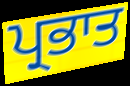
ਪ੍ਰਭਾਤ